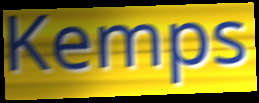
Kemps